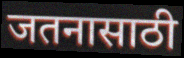
जतनासाठी